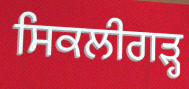
ਸਿਕਲੀਗੜ੍ਹ